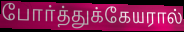
போர்த்துக்கேயரால்